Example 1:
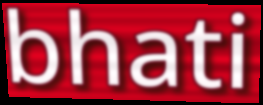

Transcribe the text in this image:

bhati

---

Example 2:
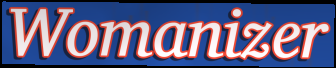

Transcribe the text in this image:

Womanizer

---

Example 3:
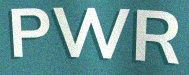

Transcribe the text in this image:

PWR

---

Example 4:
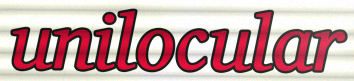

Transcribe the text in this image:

unilocular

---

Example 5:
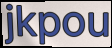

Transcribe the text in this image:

jkpou